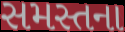
સમસ્તના